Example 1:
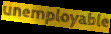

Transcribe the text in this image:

unemployable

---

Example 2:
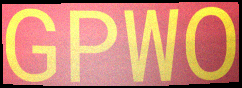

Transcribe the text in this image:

GPWO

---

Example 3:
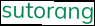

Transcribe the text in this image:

sutorang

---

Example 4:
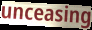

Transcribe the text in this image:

unceasing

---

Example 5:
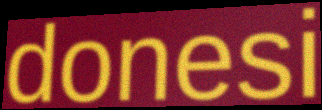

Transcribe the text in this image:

donesi